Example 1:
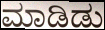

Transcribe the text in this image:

ಮಾಡಿಡು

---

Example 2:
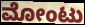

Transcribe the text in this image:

ಮೋಂಟು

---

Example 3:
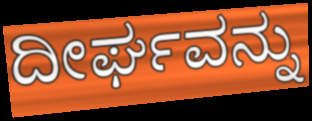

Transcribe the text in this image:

ದೀರ್ಘವನ್ನು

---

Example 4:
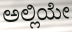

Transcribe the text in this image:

ಅಲ್ಲಿಯೇ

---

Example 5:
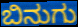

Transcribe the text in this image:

ಬಿನುಗು